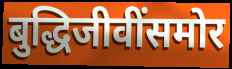
बुद्धिजीवींसमोर